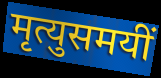
मृत्युसमयीं